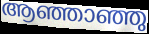
ആഞ്ഞാഞ്ഞു